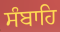
ਸੰਬਾਹਿ